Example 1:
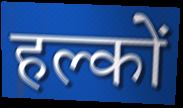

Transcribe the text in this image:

हल्कों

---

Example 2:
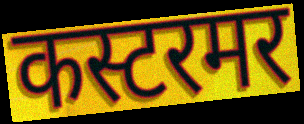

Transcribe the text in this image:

कस्टरमर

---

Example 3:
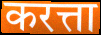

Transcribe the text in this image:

करत्ता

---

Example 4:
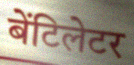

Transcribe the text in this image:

बेंटिलेटर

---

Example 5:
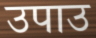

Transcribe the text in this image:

उपाउ